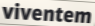
viventem